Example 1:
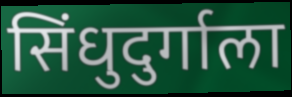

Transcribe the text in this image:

सिंधुदुर्गाला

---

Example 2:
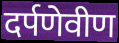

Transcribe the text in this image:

दर्पणेवीण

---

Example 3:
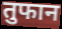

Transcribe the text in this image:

तुफान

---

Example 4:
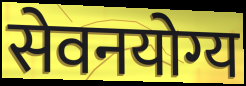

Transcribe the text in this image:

सेवनयोग्य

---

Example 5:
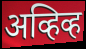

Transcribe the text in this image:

अव्हिव्ह